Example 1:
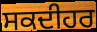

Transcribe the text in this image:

ਸਕਦੀਹਰ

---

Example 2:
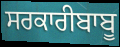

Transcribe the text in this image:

ਸਰਕਾਰੀਬਾਬੂ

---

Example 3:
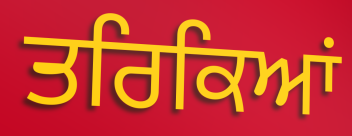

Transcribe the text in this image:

ਤਰਿਕਿਆਂ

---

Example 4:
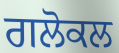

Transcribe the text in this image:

ਗਲੋਕਲ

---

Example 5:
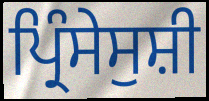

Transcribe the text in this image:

ਪ੍ਰਿੰਸੇਸੁਸ਼ੀ